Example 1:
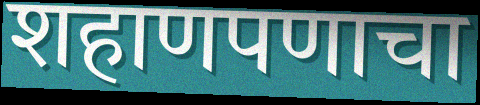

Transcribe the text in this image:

शहाणपणाचा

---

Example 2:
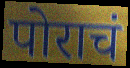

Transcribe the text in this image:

पोराचं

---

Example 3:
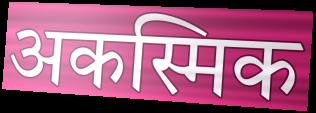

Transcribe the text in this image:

अकस्मिक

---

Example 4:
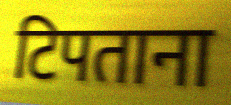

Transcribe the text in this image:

टिपताना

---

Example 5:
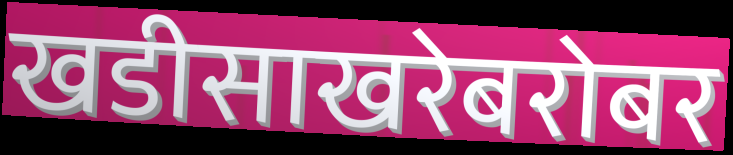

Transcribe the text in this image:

खडीसाखरेबरोबर